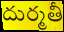
దుర్మతీ